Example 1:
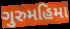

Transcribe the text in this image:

ગુરુમહિમા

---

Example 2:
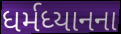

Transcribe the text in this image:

ધર્મધ્યાનના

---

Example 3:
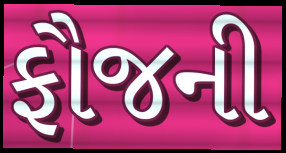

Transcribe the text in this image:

ફૌજની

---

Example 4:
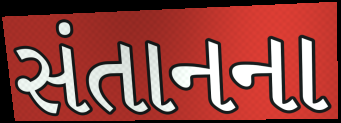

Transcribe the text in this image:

સંતાનના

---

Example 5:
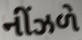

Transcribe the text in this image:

નીંઝળે